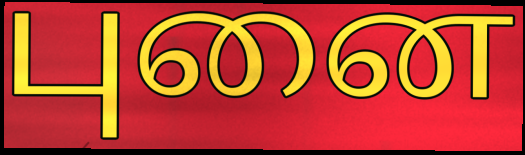
புனை